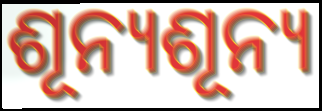
ଶୂନ୍ୟଶୂନ୍ୟ